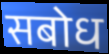
सबोध